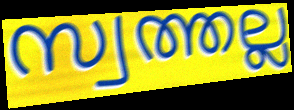
സ്വത്തല്ല